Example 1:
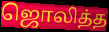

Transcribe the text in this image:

ஜொலித்த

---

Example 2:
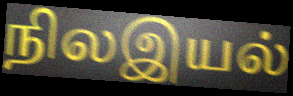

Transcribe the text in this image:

நிலஇயல்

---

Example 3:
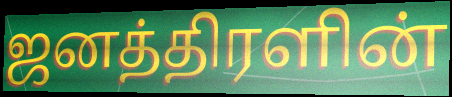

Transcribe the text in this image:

ஜனத்திரளின்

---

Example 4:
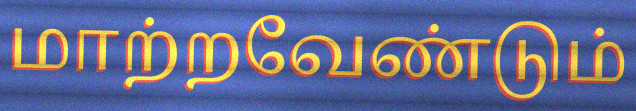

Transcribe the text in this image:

மாற்றவேண்டும்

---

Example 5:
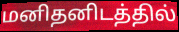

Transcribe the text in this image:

மனிதனிடத்தில்